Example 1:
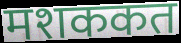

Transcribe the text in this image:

मशककत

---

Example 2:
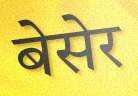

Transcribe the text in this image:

बेसेर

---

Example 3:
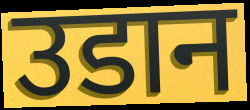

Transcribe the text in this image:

उडान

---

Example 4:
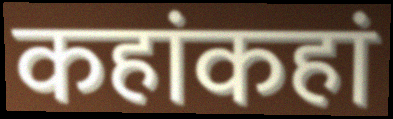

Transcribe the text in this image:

कहांकहां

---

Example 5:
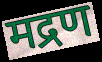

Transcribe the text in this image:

मद्रण